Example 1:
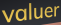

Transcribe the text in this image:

valuer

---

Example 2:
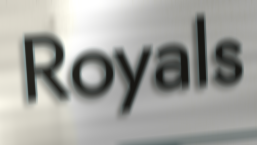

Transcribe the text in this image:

Royals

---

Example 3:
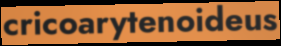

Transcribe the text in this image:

cricoarytenoideus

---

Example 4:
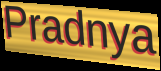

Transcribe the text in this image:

Pradnya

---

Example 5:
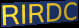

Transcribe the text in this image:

RIRDC